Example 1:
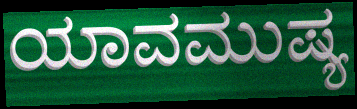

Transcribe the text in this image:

ಯಾವಮುಷ್ಯ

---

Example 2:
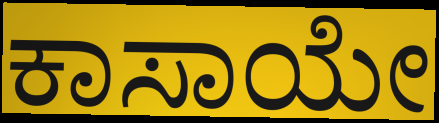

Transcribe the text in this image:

ಕಾಸಾಯೇ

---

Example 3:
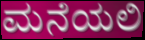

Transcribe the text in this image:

ಮನೆಯಲಿ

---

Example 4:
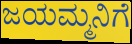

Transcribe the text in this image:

ಜಯಮ್ಮನಿಗೆ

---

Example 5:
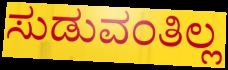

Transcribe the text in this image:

ಸುಡುವಂತಿಲ್ಲ